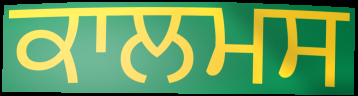
ਕਾਲਮਸ